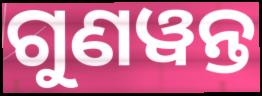
ଗୁଣୱନ୍ତ